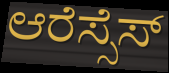
ಆರೆಸ್ಸೆಸ್